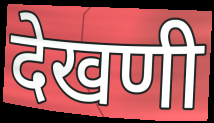
देखणी